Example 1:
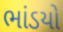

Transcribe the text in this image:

ભાંડયો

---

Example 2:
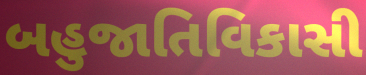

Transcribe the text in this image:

બહુજાતિવિકાસી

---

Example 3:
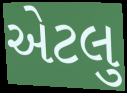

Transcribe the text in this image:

એટલુ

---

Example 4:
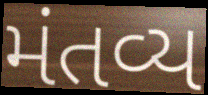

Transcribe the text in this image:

મંતવ્ય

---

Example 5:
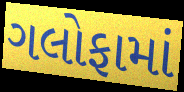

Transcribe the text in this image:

ગલોફામાં